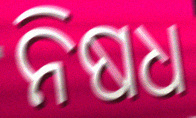
ନିଷଧ